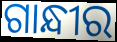
ଗାନ୍ଧୀର